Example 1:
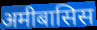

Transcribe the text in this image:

अमीबासिस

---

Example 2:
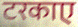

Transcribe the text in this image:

टरकाए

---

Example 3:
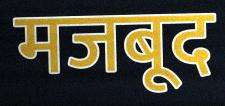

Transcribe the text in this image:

मजबूद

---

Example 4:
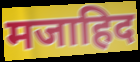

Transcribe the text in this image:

मजाहिद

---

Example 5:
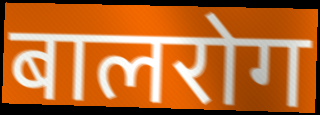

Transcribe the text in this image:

बालरोग